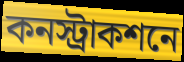
কনস্ট্রাকশনে